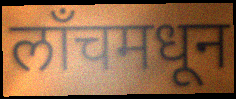
लॉंचमधून